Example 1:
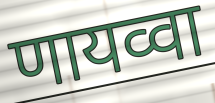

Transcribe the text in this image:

णायव्वा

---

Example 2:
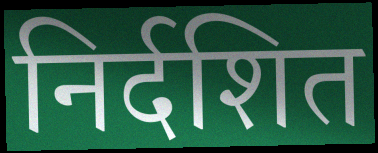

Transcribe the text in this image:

निर्दशित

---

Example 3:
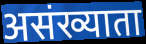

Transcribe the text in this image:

असंख्याता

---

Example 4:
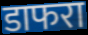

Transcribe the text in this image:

डाफरा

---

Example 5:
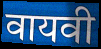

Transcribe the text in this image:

वायवी